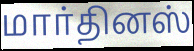
மார்தினஸ்